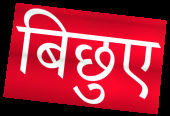
बिछुए